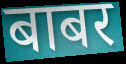
बाबर